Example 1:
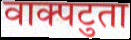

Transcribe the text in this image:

वाक्पटुता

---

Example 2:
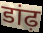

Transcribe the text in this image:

डांढ़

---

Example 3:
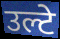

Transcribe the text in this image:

उल्टे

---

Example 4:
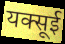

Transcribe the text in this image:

यक्सूई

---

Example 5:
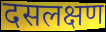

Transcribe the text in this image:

दसलक्षण